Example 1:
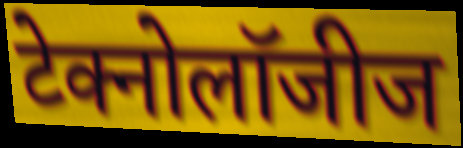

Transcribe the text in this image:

टेक्नोलॉजीज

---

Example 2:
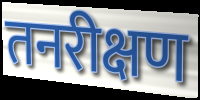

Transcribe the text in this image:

तनरीक्षण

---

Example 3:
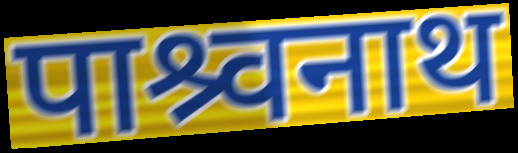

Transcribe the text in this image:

पाश्र्वनाथ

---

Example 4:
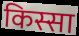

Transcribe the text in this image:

किस्सा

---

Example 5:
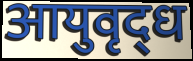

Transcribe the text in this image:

आयुवृद्ध